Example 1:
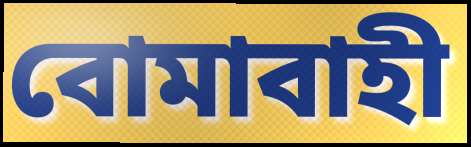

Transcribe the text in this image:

বোমাবাহী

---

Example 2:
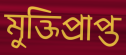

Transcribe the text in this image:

মুক্তিপ্রাপ্ত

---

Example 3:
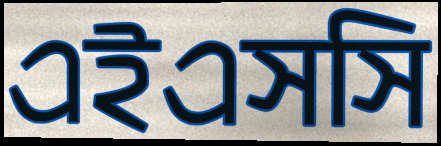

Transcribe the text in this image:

এইএসসি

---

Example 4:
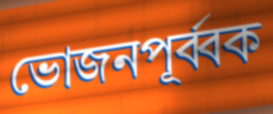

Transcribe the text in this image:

ভোজনপূর্ব্বক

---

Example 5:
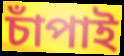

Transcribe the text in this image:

চাঁপাই